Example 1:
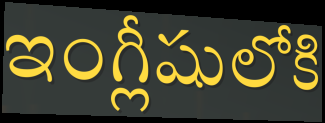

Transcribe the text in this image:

ఇంగ్లీషులోకి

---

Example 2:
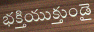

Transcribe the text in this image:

భక్తియుక్తుండై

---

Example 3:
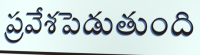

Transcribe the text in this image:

ప్రవేశపెడుతుంది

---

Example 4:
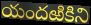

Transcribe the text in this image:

యందఱికిని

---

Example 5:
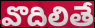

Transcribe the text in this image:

వొదిలితే